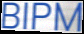
BIPM